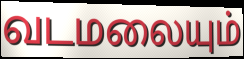
வடமலையும்